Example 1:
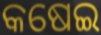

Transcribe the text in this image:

କଷେଇ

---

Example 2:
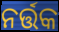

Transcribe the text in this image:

ନର୍ତ୍ତକ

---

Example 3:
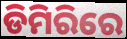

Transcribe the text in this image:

ଡିମିରିରେ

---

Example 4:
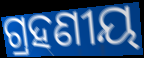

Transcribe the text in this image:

ଗ୍ରହଣୀୟ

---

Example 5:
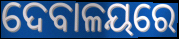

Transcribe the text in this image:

ଦେବାଳୟରେ